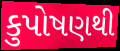
કુપોષણથી